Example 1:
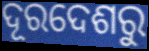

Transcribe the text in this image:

ଦୂରଦେଶରୁ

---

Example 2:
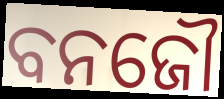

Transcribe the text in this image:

ବନଜୌ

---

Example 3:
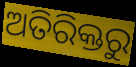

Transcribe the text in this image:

ଅତିରିକ୍ତରୁ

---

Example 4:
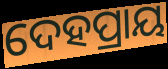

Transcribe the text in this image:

ଦେହପ୍ରାୟ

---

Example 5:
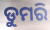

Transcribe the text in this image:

ଡୁମରି